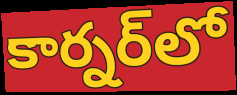
కార్నర్‌లో